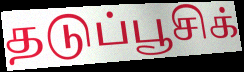
தடுப்பூசிக்